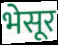
भेसूर